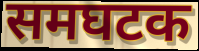
समघटक